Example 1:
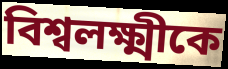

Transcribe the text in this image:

বিশ্বলক্ষ্মীকে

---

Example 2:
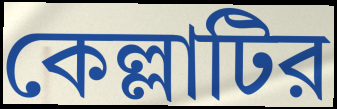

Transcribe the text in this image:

কেল্লাটির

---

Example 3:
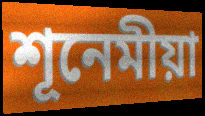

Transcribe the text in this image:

শূনেমীয়া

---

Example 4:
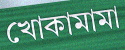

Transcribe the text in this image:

খোকামামা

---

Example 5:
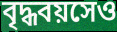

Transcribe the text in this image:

বৃদ্ধবয়সেও